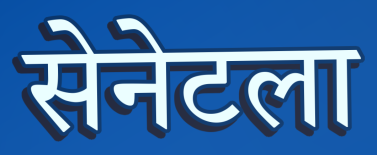
सेनेटला